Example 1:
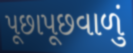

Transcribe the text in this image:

પૂછાપૂછવાળું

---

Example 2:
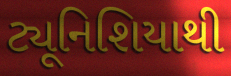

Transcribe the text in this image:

ટ્યૂનિશિયાથી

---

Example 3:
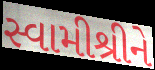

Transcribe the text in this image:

સ્વામીશ્રીને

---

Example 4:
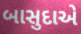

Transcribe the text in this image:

બાસુદાએ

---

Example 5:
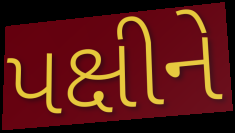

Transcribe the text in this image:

પક્ષીને